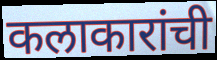
कलाकारांची